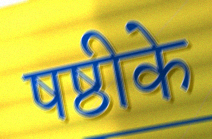
षष्ठीके